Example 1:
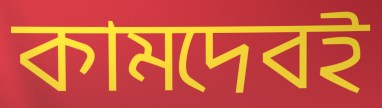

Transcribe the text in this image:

কামদেবই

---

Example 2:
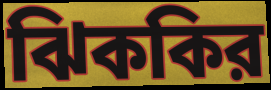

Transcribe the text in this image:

ঝিককির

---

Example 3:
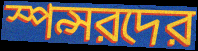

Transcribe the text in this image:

স্পন্সরদের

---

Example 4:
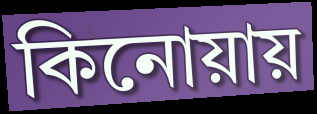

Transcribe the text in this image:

কিনোয়ায়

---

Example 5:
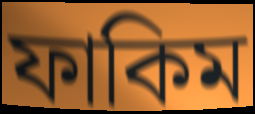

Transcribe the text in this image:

ফাকিম